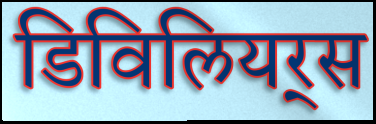
डिविलियर्स